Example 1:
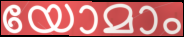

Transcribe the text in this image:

യോമാം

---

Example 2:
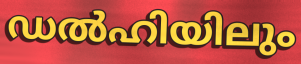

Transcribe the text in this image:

ഡൽഹിയിലും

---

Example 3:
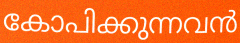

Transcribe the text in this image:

കോപിക്കുന്നവൻ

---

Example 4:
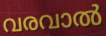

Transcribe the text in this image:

വരവാൽ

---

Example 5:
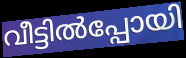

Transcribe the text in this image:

വീട്ടിൽപ്പോയി